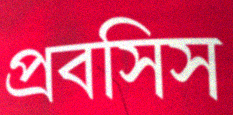
প্রবসিস